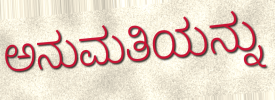
ಅನುಮತಿಯನ್ನು